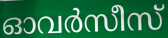
ഓവർസീസ്